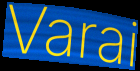
Varai